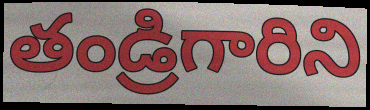
తండ్రిగారిని